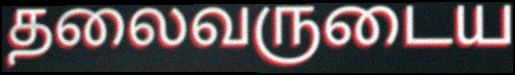
தலைவருடைய